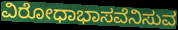
ವಿರೋಧಾಭಾಸವೆನಿಸುವ